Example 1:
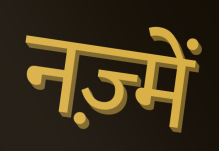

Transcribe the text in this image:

नज़्में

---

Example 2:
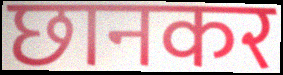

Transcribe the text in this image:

छानकर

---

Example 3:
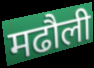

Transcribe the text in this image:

मढौली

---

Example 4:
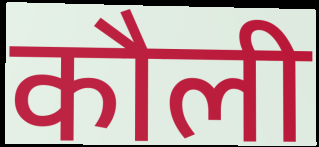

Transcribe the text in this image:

कौली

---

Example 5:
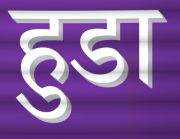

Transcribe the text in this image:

हुडा